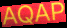
AQAP